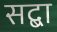
सद्बा